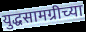
युद्धसामग्रीच्या